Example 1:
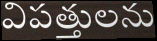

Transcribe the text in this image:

విపత్తులను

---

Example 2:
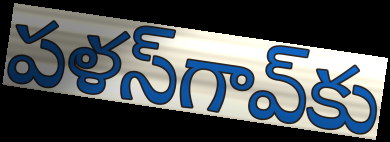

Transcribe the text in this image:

పళస్‌గావ్‌కు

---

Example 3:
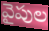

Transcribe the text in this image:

వైపుల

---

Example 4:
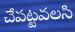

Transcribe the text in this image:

చేపట్టవలసి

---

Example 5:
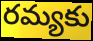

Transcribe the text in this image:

రమ్యకు